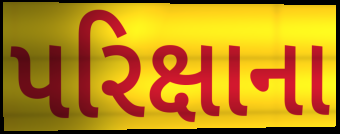
પરિક્ષાના